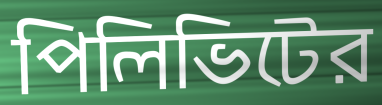
পিলিভিটের